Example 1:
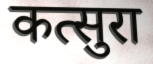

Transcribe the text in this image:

कत्सुरा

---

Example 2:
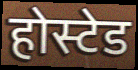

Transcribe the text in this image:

होस्टेड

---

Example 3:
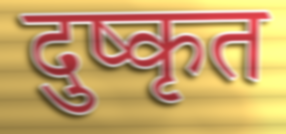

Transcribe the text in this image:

दुष्कृत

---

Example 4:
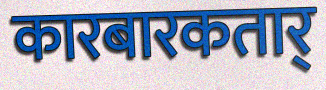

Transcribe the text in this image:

कारबारकतार्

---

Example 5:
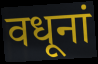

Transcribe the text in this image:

वधूनां